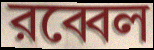
রব্বেল